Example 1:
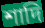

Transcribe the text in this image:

শাদি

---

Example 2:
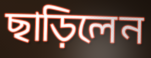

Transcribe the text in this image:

ছাড়িলেন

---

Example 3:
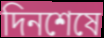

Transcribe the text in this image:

দিনশেষে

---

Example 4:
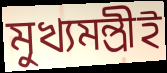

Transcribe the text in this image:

মুখ্যমন্ত্রীই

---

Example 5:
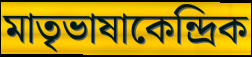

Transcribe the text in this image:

মাতৃভাষাকেন্দ্রিক